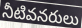
నీటివనరులు